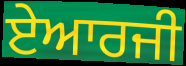
ਏਆਰਜੀ